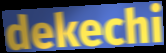
dekechi